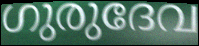
ഗുരുദേവ